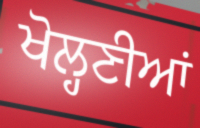
ਖੋਲ੍ਹਣੀਆਂ